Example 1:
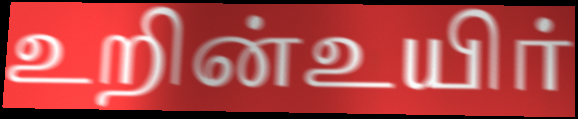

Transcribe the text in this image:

உறின்உயிர்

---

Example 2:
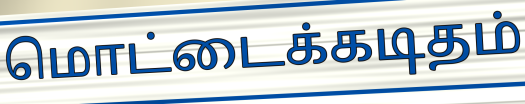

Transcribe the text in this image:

மொட்டைக்கடிதம்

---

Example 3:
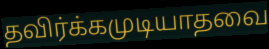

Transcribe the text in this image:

தவிர்க்கமுடியாதவை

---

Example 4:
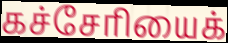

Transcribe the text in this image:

கச்சேரியைக்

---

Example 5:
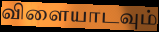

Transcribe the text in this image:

விளையாடவும்